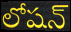
లోషన్